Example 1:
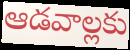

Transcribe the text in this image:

ఆడవాల్లకు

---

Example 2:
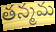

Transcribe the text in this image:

తన్మమ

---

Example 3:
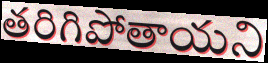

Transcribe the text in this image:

తరిగిపోతాయని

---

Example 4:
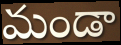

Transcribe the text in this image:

మండా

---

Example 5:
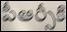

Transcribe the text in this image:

పీఆర్సీకి